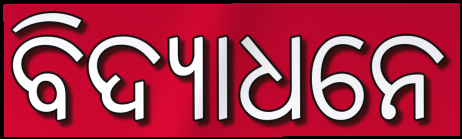
ବିଦ୍ୟାଧନେ